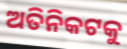
ଅତିନିକଟକୁ